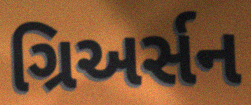
ગ્રિઅર્સન